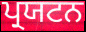
ਪ੍ਰਯਟਨ